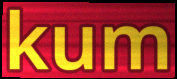
kum